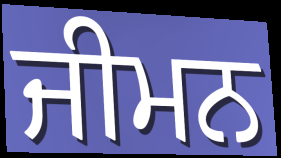
ਜੀਮਨ